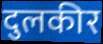
दुलकीर